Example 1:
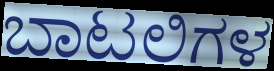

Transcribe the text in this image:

ಬಾಟಲಿಗಳ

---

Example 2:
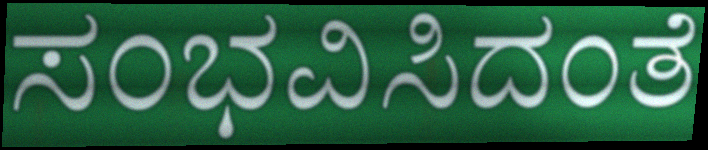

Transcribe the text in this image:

ಸಂಭವಿಸಿದಂತೆ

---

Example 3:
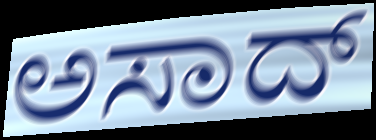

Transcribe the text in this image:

ಅಸಾದ್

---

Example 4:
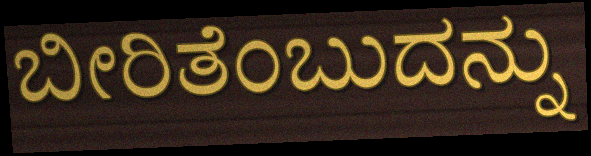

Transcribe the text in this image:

ಬೀರಿತೆಂಬುದನ್ನು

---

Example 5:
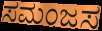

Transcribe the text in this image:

ಸಮಂಜಸ